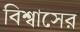
বিশ্বাসের